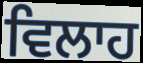
ਵਿਲਾਹ